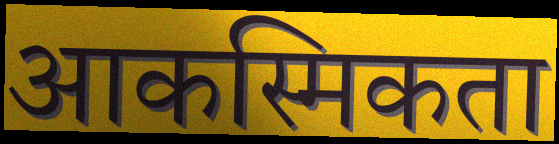
आकस्मिकता